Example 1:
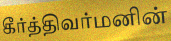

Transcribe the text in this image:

கீர்த்திவர்மனின்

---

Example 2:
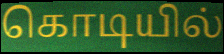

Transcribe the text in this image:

கொடியில்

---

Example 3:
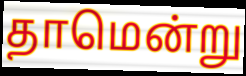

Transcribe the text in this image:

தாமென்று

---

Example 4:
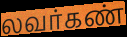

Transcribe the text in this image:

லவர்கண்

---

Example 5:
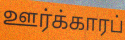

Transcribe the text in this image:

ஊர்க்காரப்